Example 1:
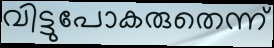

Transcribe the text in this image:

വിട്ടുപോകരുതെന്ന്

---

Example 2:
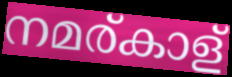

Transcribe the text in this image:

നമര്കാള്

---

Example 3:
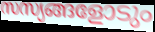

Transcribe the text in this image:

സസ്യങ്ങളോടും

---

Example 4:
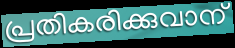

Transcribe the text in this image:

പ്രതികരിക്കുവാന്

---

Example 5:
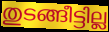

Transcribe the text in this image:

തുടങ്ങീട്ടില്ല